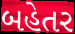
બહેતર